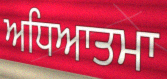
ਅਧਿਆਤਮਾ